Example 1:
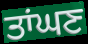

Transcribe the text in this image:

ਤਾਂਘਣ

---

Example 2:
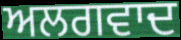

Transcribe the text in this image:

ਅਲਗਵਾਦ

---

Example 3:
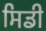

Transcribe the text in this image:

ਸਿਡੀ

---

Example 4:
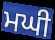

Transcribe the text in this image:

ਮਘੀ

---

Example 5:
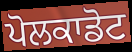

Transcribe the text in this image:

ਪੋਲਕਾਡੋਟ